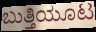
ಬುತ್ತಿಯೂಟ